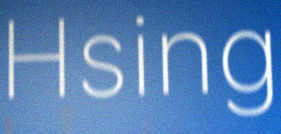
Hsing